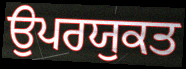
ਉਪਰਯੁਕਤ